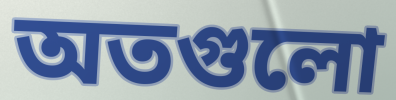
অতগুলো